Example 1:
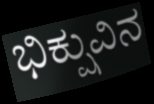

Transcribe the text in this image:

ಭಿಕ್ಷುವಿನ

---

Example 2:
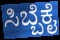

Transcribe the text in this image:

ಸಿಬ್ಬೆಕೈ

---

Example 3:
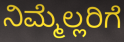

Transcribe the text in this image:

ನಿಮ್ಮೆಲ್ಲರಿಗೆ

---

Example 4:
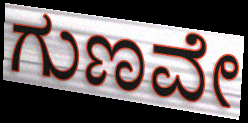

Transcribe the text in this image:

ಗುಣವೇ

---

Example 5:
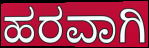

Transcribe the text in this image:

ಹರವಾಗಿ